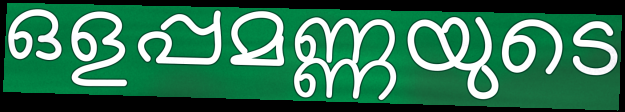
ഒളപ്പമണ്ണയുടെ